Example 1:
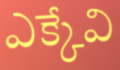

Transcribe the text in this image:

ఎక్కేవి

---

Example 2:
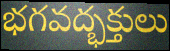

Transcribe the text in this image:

భగవద్భక్తులు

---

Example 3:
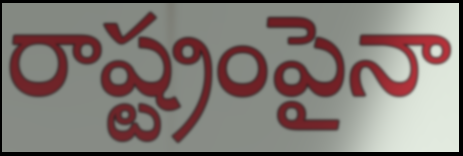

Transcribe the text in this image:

రాష్ట్రంపైనా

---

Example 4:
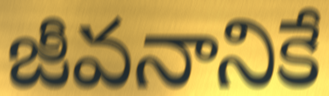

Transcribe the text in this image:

జీవనానికే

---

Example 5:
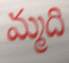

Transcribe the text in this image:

మ్మది